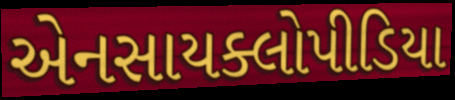
એનસાયક્લોપીડિયા